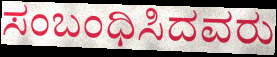
ಸಂಬಂಧಿಸಿದವರು